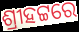
ଶ୍ରୀହଟ୍ଟରେ